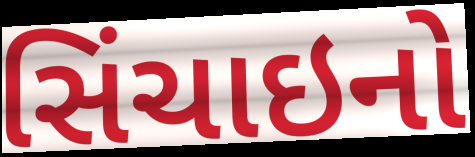
સિંચાઇનો